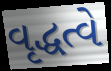
વૃદ્ધત્વે